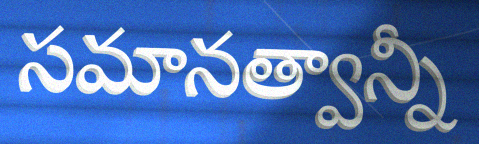
సమానత్వాన్నీ